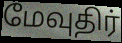
மேவுதிர்